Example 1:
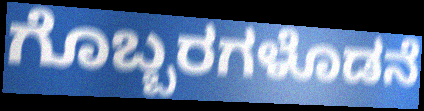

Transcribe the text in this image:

ಗೊಬ್ಬರಗಳೊಡನೆ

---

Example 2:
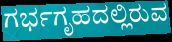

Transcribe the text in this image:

ಗರ್ಭಗೃಹದಲ್ಲಿರುವ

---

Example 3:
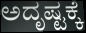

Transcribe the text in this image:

ಅದೃಷ್ಟಕ್ಕೆ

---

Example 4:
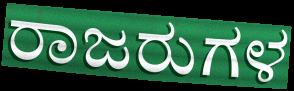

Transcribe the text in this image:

ರಾಜರುಗಳ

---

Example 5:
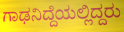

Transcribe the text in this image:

ಗಾಢನಿದ್ದೆಯಲ್ಲಿದ್ದರು